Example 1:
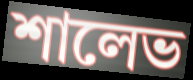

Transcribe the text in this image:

শালেভ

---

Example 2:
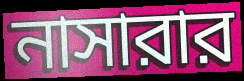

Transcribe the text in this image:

নাসারার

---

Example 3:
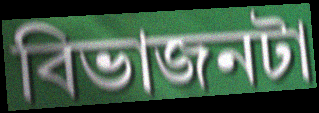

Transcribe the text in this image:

বিভাজনটা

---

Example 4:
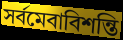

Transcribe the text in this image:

সর্বমেবাবিশন্তি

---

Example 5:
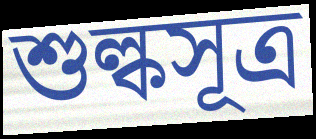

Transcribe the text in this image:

শুল্কসূত্র